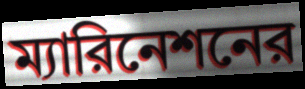
ম্যারিনেশনের